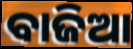
ବାଜିଆ